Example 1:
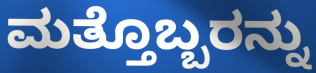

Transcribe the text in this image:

ಮತ್ತೊಬ್ಬರನ್ನು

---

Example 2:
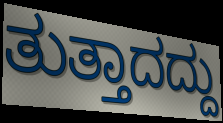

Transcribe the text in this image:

ತುತ್ತಾದದ್ದು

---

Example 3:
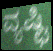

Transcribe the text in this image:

ವ್ಯಷ್ಟಿ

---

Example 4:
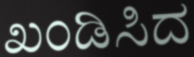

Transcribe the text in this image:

ಖಂಡಿಸಿದ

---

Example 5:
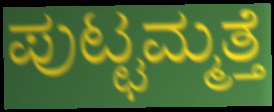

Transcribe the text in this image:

ಪುಟ್ಟಮ್ಮತ್ತೆ